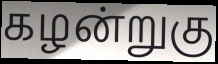
கழன்றுகு